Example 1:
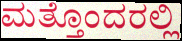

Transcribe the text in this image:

ಮತ್ತೊಂದರಲ್ಲಿ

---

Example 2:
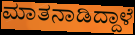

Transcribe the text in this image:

ಮಾತನಾಡಿದ್ದಾಳೆ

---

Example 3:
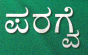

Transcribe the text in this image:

ಪರಗ್ವೆ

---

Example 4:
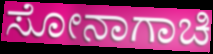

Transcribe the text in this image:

ಸೋನಾಗಾಚಿ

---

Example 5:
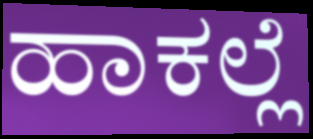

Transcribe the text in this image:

ಹಾಕಲ್ಲೆ